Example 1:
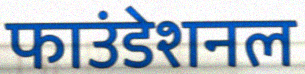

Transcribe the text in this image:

फाउंडेशनल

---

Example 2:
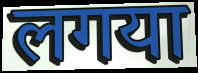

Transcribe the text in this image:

लगया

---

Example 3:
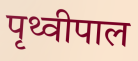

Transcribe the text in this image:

पृथ्वीपाल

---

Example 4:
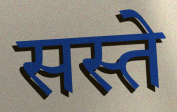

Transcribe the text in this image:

सस्‍ते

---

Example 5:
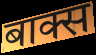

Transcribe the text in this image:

बाक्स